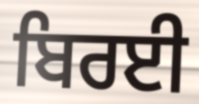
ਬਿਰਈ